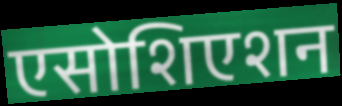
एसोशिएशन